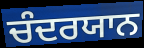
ਚੰਦਰਯਾਨ